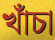
খাঁচা